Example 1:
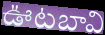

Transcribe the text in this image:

ఊటబావి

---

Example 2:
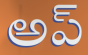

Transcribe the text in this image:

అప్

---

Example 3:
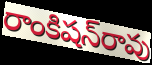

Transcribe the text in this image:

రాంకిషన్‌రావు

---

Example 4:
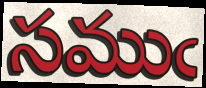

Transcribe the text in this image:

సముఁ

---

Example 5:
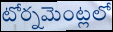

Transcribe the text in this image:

టోర్నమెంట్లలో